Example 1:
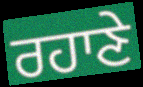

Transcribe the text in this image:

ਰਹਾਣੇ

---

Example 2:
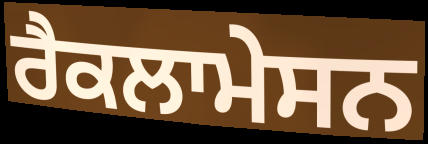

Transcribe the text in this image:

ਰੈਕਲਾਮੇਸਨ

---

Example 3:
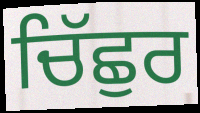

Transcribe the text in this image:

ਚਿੱਛੁਰ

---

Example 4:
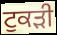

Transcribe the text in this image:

ਟੁਕਡ਼ੀ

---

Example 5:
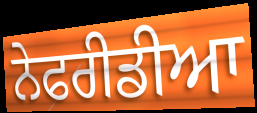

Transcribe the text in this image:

ਨੇਫਰੀਡੀਆ